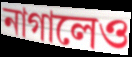
নাগালেও